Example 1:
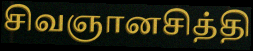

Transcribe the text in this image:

சிவஞானசித்தி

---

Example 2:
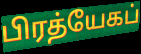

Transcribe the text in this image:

பிரத்யேகப்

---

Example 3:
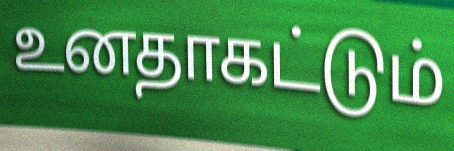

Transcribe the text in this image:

உனதாகட்டும்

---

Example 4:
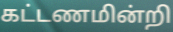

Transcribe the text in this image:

கட்டணமின்றி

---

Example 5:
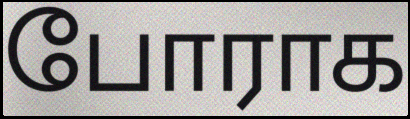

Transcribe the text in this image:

போராக